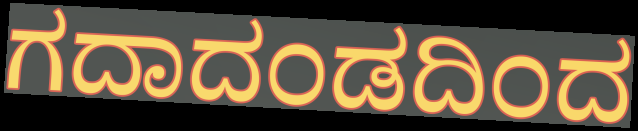
ಗದಾದಂಡದಿಂದ